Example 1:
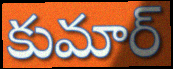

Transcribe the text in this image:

కుమార్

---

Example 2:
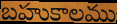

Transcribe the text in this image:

బహుకాలము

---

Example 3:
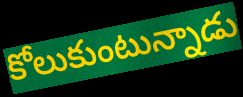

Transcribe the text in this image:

కోలుకుంటున్నాడు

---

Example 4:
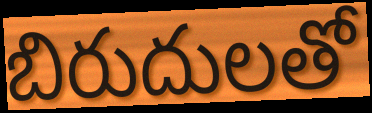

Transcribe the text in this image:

బిరుదులతో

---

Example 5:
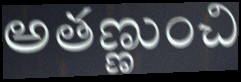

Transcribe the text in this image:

అతణ్ణుంచి